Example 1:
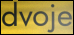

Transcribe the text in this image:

dvoje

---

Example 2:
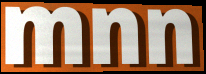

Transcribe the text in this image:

mnn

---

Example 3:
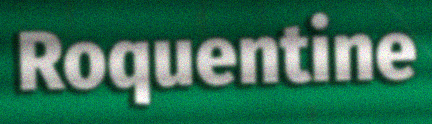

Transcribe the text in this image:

Roquentine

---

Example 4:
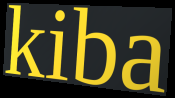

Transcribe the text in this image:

kiba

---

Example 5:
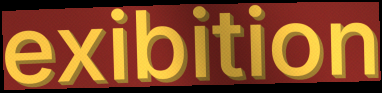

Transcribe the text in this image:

exibition